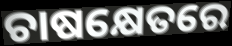
ଚାଷକ୍ଷେତରେ